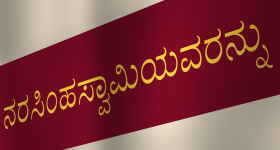
ನರಸಿಂಹಸ್ವಾಮಿಯವರನ್ನು